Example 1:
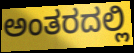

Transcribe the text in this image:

ಅಂತರದಲ್ಲಿ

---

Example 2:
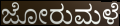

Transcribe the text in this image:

ಜೋರುಮಳೆ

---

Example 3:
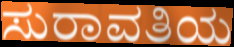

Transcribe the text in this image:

ಸುರಾವತಿಯ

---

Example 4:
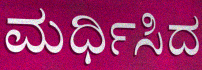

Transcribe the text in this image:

ಮರ್ಧಿಸಿದ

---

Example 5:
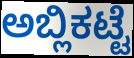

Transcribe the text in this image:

ಅಬ್ಲಿಕಟ್ಟೆ